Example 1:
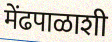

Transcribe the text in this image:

मेंढपाळाशी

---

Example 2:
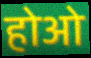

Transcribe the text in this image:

होओ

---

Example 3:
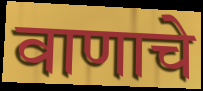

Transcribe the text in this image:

वाणाचे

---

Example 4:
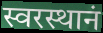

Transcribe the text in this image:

स्वरस्थानं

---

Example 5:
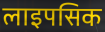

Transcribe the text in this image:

लाइपसिक